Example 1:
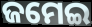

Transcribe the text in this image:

ଜମେଇ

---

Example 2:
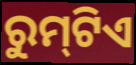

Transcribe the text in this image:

ରୁମ୍‌ଟିଏ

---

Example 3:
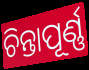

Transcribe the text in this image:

ଚିନ୍ତାପୂର୍ଣ୍ଣ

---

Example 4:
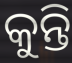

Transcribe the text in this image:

କୁନ୍ତି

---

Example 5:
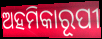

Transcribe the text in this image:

ଅହମିକାରୂପୀ